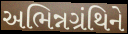
અભિન્નગ્રંથિને